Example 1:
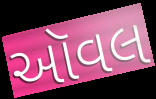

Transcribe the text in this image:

ઑવલ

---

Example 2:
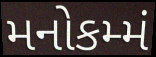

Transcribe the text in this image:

મનોકમ્મં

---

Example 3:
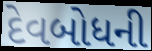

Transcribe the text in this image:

દેવબોધની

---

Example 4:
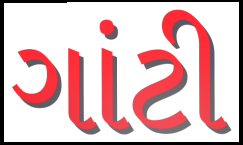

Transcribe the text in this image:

ગાંટી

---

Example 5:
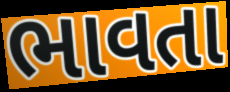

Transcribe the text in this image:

ભાવતા